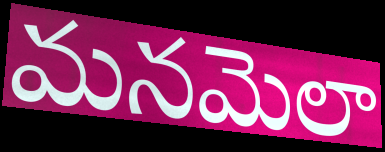
మనమెలా